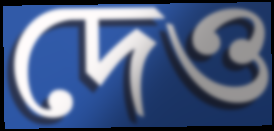
দেও